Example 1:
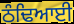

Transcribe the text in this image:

ਠੰਢਿਆਈ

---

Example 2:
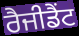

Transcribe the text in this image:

ਰੈਜੀਡੈਂਟ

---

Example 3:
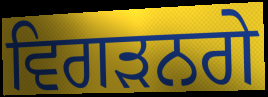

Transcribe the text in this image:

ਵਿਗੜਨਗੇ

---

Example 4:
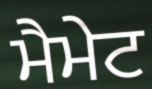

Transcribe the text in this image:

ਮੈਮੇਟ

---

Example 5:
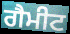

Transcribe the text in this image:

ਗੈਮੀਟ